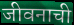
जीवनाची